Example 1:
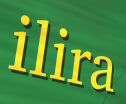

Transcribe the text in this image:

ilira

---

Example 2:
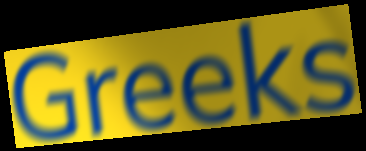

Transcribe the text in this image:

Greeks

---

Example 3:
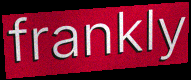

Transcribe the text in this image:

frankly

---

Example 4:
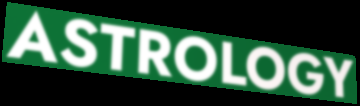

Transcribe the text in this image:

ASTROLOGY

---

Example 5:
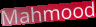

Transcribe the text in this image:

Mahmood